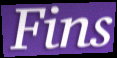
Fins